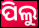
ପିଲୁ